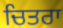
ਚਿਤਰਾ